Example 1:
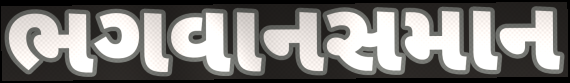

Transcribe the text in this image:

ભગવાનસમાન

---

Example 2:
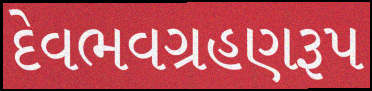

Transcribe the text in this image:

દેવભવગ્રહણરૂપ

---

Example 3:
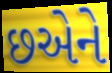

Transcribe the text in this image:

છએને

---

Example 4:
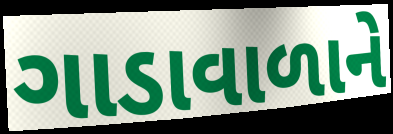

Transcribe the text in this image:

ગાડાવાળાને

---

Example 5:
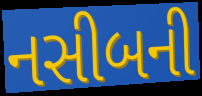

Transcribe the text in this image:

નસીબની